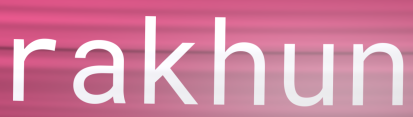
rakhun